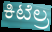
ಕಿಟೆಲ್ರ